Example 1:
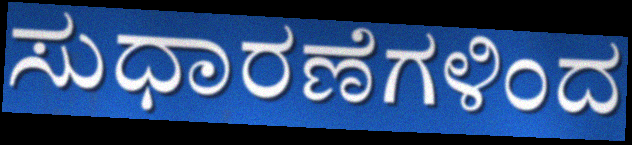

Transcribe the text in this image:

ಸುಧಾರಣೆಗಳಿಂದ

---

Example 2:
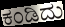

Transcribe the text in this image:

ಕಂಡಿದು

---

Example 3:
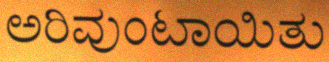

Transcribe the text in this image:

ಅರಿವುಂಟಾಯಿತು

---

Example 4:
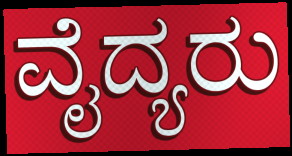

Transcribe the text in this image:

ವೈದ್ಯರು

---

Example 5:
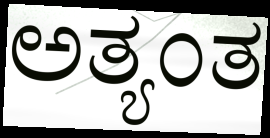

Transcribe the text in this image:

ಅತ್ಯಂತ